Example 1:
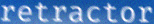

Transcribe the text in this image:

retractor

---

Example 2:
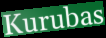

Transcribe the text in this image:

Kurubas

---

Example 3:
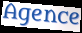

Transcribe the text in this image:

Agence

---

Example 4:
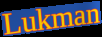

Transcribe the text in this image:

Lukman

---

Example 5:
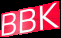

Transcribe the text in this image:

BBK